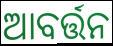
ଆବର୍ତ୍ତନ